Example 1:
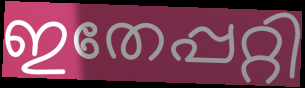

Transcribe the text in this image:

ഇതേപ്പറ്റി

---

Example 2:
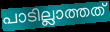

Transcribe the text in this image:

പാടില്ലാത്തത്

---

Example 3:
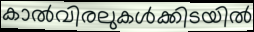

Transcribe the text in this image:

കാൽവിരലുകൾക്കിടയിൽ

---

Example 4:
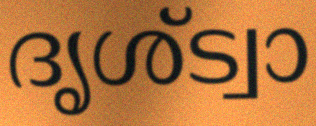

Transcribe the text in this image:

ദൃശ്ട്വാ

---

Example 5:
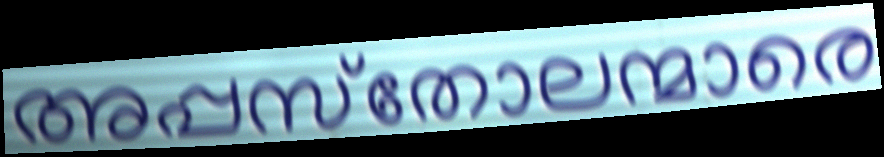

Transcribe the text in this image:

അപ്പസ്‌തോലന്മാരെ